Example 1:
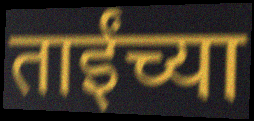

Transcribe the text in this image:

ताईंच्या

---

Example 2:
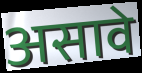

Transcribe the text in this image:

असावे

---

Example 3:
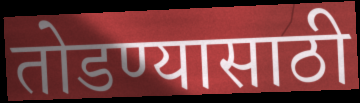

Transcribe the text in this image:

तोडण्यासाठी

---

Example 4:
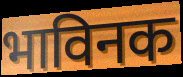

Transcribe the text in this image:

भाविनक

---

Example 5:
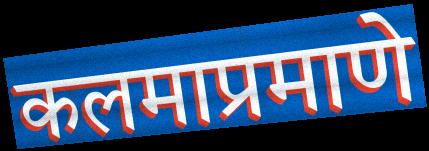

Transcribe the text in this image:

कलमाप्रमाणे